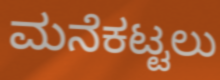
ಮನೆಕಟ್ಟಲು